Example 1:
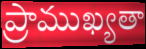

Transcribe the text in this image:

ప్రాముఖ్యతా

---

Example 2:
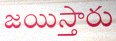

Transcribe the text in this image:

జయిస్తారు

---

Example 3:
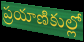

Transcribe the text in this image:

ప్రయాణికుల్లో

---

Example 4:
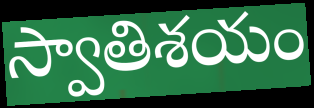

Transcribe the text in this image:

స్వాతిశయం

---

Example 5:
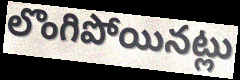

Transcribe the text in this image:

లొంగిపోయినట్లు